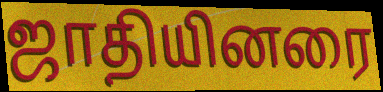
ஜாதியினரை